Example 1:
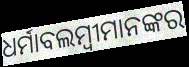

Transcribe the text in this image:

ଧର୍ମାବଲମ୍ବୀମାନଙ୍କର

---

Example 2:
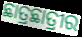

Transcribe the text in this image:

ଛାତ୍ରଛାତ୍ରୀର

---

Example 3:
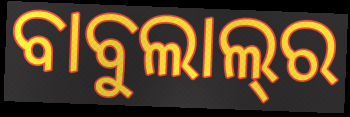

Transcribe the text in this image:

ବାବୁଲାଲ୍‍ର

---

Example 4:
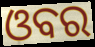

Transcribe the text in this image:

ଓବର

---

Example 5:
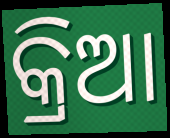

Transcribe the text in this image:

କ୍ରିଆ